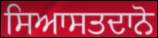
ਸਿਆਸਤਦਾਨੋ